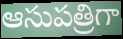
ఆసుపత్రిగా